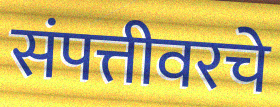
संपत्तीवरचे